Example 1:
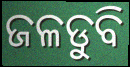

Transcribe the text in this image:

ଜଳଡୁବି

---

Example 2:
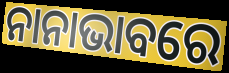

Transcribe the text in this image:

ନାନାଭାବରେ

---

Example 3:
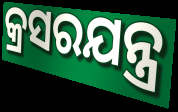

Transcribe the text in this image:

କ୍ରସରଯନ୍ତ୍ର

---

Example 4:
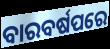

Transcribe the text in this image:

ବାରବର୍ଷପରେ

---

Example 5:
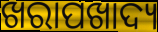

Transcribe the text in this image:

ଖରାପଖାଦ୍ୟ